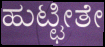
ಹುಟ್ಟೀತೇ